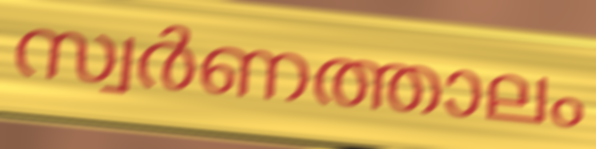
സ്വർണത്താലം